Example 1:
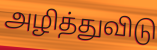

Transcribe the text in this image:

அழித்துவிடு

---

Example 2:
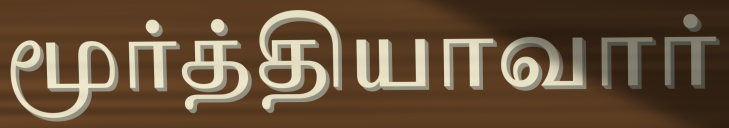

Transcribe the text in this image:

மூர்த்தியாவார்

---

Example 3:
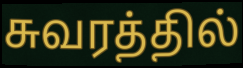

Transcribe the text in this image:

சுவரத்தில்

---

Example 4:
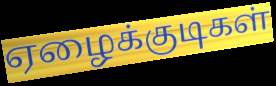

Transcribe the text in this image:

ஏழைக்குடிகள்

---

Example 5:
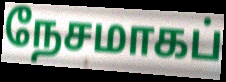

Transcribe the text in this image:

நேசமாகப்